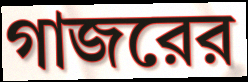
গাজরের